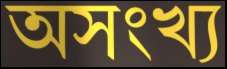
অসংখ্য